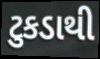
ટુકડાથી